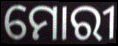
ମୋରୀ